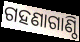
ଗହଣାଗାଣ୍ଠି